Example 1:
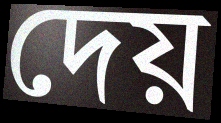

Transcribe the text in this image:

দেয়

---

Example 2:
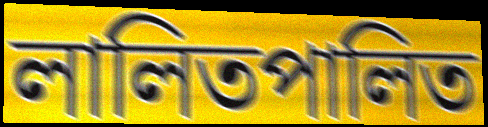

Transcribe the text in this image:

লালিতপালিত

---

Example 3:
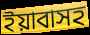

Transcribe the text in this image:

ইয়াবাসহ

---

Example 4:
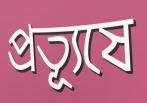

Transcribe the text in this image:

প্রত্যূষে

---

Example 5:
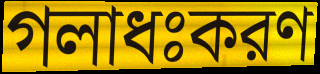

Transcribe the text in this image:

গলাধঃকরণ